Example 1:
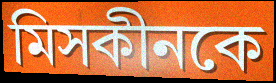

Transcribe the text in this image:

মিসকীনকে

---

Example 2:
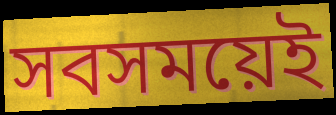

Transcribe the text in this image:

সবসময়েই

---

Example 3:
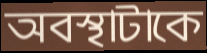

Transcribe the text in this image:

অবস্থাটাকে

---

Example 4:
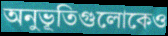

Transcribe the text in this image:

অনুভূতিগুলোকেও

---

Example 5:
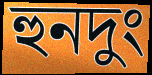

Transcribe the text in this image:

হুনদুং